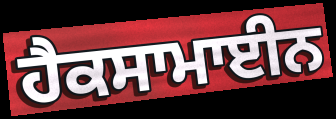
ਹੈਕਸਾਮਾਈਨ